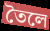
তৈলে